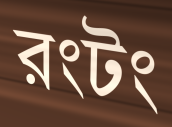
রংটং